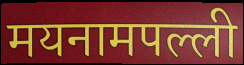
मयनामपल्ली